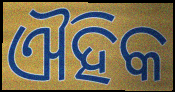
ଐହିକ